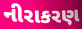
નીરાકરણ